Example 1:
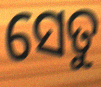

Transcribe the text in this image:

ସେତୁ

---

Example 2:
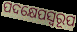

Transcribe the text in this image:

ପଦକ୍ଷେପସ୍ୱରୂପ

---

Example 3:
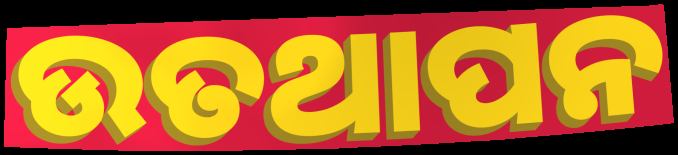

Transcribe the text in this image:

ଉତଥାପନ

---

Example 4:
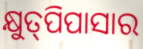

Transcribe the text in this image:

କ୍ଷୁତ୍‍ପିପାସାର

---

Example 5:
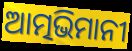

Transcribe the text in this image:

ଆତ୍ମଭିମାନୀ